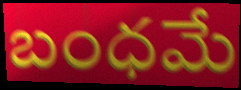
బంధమే